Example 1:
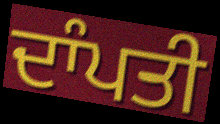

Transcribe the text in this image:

ਦਾੰਪਤੀ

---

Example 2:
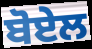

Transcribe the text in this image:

ਬੋਏਲ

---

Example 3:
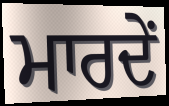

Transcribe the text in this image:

ਮਾਰਦੇਂ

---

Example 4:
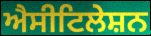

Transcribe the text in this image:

ਐਸੀਟਿਲੇਸ਼ਨ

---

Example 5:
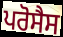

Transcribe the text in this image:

ਪਰੋਸੈਸ